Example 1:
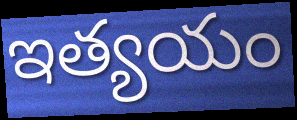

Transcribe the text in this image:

ఇత్యయం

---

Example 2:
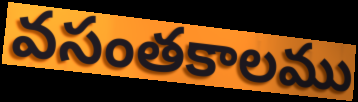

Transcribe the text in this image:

వసంతకాలము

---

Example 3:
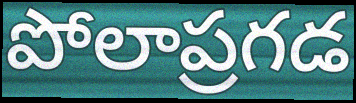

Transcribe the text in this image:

పోలాప్రగడ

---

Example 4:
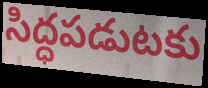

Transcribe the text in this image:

సిద్ధపడుటకు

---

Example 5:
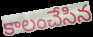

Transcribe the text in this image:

కాలంచేసిన